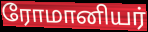
ரோமானியர்